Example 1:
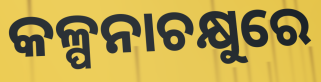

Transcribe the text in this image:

କଳ୍ପନାଚକ୍ଷୁରେ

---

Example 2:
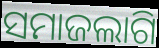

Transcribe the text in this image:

ସମାଜଲାଗି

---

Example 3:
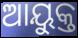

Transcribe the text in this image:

ଆୟୁକ୍ତ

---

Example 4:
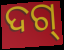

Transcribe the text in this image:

ଦଗ୍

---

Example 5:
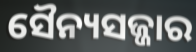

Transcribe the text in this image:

ସୈନ୍ୟସଜ୍ଜାର